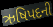
ઋષિપદની